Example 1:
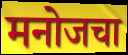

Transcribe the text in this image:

मनोजचा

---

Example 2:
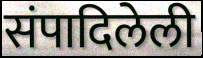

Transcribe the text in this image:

संपादिलेली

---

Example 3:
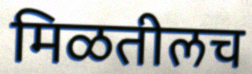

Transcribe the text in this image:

मिळतीलच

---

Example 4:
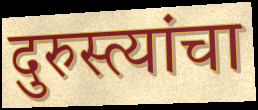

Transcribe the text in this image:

दुरुस्त्यांचा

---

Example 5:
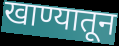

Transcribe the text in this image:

खाण्यातून